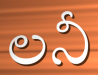
లనీ